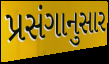
પ્રસંગાનુસાર